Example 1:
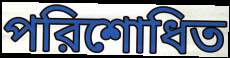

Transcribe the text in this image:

পরিশোধিত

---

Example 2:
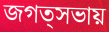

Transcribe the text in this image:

জগত্সভায়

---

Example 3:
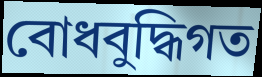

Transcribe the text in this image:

বোধবুদ্ধিগত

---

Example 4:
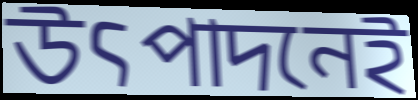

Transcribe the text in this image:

উৎপাদনেই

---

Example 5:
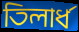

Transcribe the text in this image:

তিলার্ধ